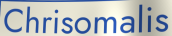
Chrisomalis